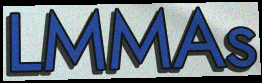
LMMAs